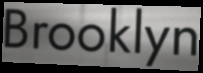
Brooklyn